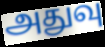
அதுவு